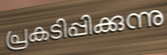
പ്രകടിപ്പിക്കുന്നു